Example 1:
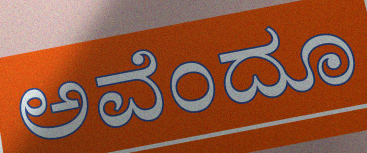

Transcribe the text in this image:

ಅವೆಂದೂ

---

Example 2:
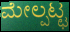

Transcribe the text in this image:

ಮೇಲ್ಪಟ್ಟ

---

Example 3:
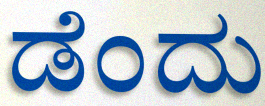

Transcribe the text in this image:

ಡೆಂದು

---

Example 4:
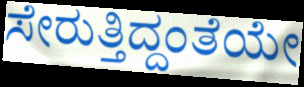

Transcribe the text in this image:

ಸೇರುತ್ತಿದ್ದಂತೆಯೇ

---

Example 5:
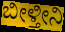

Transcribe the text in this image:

ಬೀಳ್ತೀನಿ